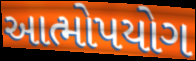
આત્મોપયોગ